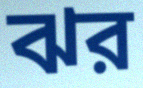
ঝর